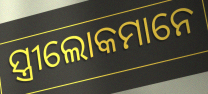
ସ୍ତ୍ରୀଲୋକମାନେ